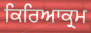
ਕਿਰਿਆਕ੍ਰਮ